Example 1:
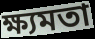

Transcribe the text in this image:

ক্ষ্যমতা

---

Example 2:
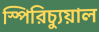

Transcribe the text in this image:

স্পিরিচ্যুয়াল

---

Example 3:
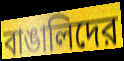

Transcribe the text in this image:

বাঙালিদের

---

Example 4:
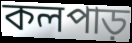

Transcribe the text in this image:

কলপাড়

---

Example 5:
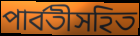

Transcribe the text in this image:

পার্বতীসহিত